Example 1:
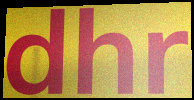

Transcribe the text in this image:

dhr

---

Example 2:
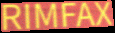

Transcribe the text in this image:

RIMFAX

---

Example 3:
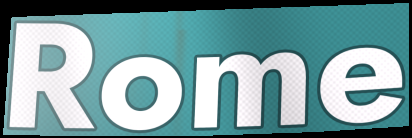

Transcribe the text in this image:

Rome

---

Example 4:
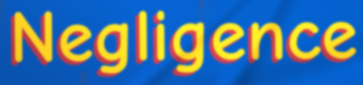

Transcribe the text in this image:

Negligence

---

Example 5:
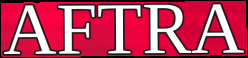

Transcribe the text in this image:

AFTRA